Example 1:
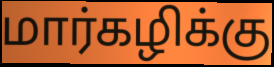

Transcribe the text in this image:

மார்கழிக்கு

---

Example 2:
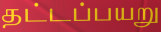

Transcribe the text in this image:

தட்டப்பயறு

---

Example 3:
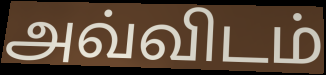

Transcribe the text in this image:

அவ்விடம்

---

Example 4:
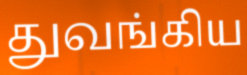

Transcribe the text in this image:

துவங்கிய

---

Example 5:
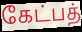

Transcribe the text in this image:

கேட்பத்